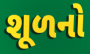
શૂળનો